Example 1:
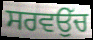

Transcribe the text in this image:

ਸਰਵਉੱਚ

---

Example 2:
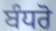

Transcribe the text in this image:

ਬੰਧਰੋ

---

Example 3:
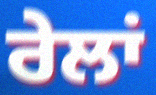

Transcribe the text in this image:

ਰੇਲਾਂ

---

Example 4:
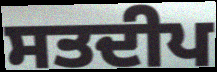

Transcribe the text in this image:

ਸਤਦੀਪ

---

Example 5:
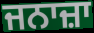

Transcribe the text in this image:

ਜਨਾਜ਼ਾ